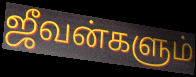
ஜீவன்களும்